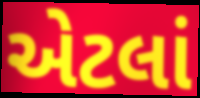
એટલાં